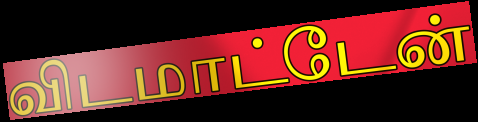
விடமாட்டேன்